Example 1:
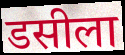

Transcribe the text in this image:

डसीला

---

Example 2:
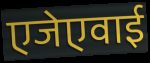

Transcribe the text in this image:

एजेएवाई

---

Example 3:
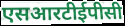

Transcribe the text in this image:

एसआरटीईपीसी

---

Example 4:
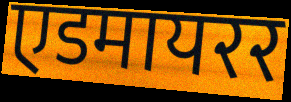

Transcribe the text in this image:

एडमायरर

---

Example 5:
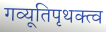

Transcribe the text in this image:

गव्यूतिपृथक्त्व